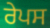
ਰੇਪਸ